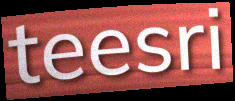
teesri